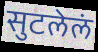
सुटलेलं